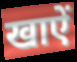
खाऐं